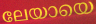
ലേയായെ